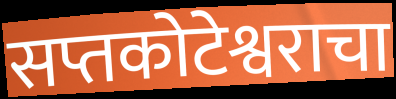
सप्तकोटेश्वराचा